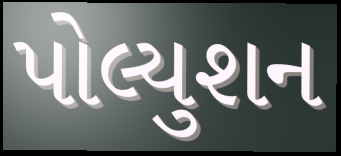
પોલ્યુશન